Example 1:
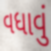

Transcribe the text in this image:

વધાવું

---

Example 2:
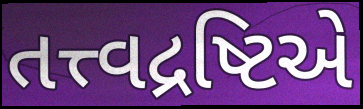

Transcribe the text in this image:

તત્ત્વદ્રષ્ટિએ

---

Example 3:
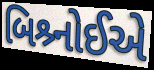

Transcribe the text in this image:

બિશ્ર્નોઈએ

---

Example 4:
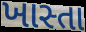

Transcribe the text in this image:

ખાસ્તા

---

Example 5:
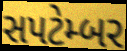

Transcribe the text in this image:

સપટેમ્બર